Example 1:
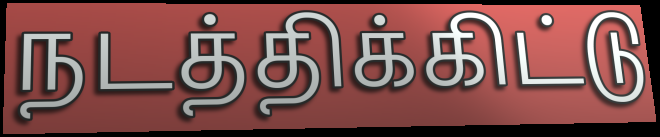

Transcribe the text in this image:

நடத்திக்கிட்டு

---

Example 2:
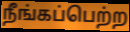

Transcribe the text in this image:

நீங்கப்பெற்ற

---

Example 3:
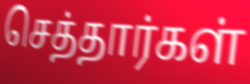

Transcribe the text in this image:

செத்தார்கள்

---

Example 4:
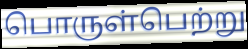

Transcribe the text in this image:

பொருள்பெற்று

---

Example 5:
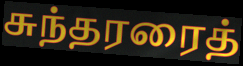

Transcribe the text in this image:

சுந்தரரைத்